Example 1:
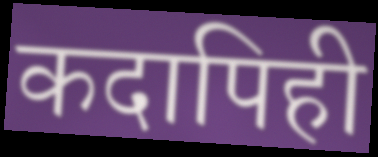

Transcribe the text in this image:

कदापिही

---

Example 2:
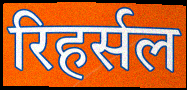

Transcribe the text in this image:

रिहर्सल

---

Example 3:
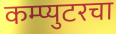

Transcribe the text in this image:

कम्प्युटरचा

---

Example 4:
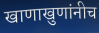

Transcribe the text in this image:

खाणाखुणांनीच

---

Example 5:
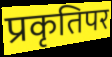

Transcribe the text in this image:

प्रकृतिपर